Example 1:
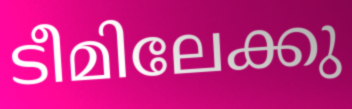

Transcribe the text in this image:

ടീമിലേക്കു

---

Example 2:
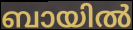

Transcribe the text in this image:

ബായിൽ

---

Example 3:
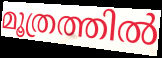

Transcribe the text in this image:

മൂത്രത്തിൽ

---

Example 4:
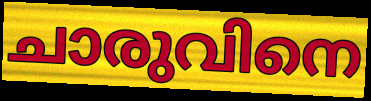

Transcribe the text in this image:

ചാരുവിനെ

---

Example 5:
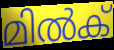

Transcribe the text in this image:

മിൽക്